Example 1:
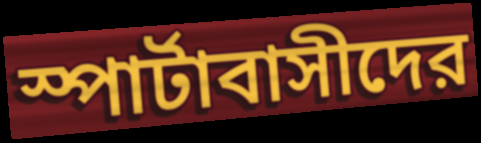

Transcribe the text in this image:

স্পার্টাবাসীদের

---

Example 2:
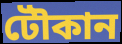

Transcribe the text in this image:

টৌকান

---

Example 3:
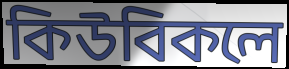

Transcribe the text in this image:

কিউবিকলে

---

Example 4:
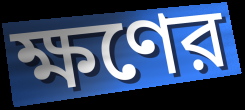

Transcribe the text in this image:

ক্ষণের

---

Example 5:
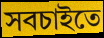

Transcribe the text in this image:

সবচাইতে